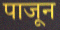
पाजून